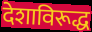
देशाविरूद्ध